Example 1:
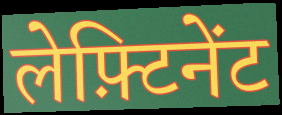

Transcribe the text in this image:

लेफ़्टिनेंट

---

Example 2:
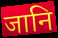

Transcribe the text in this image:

जानि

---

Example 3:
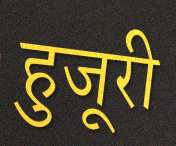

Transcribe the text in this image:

हुजूरी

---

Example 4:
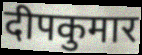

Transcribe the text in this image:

दीपकुमार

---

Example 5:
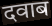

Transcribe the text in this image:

दवाब